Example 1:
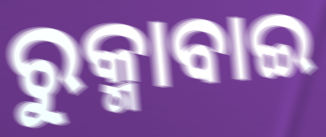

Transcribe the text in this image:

ରୁକ୍ମାବାଇ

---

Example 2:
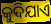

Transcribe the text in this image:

କୁଦିଯାଏ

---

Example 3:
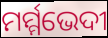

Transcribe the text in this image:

ମର୍ମ୍ମଭେଦୀ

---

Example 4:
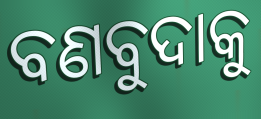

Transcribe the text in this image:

ବଣବୁଦାକୁ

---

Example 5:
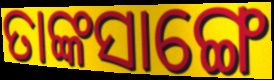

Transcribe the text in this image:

ତାଙ୍କସାଙ୍ଗେ